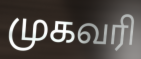
முகவரி